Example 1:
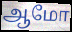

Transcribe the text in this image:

ஆமோ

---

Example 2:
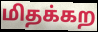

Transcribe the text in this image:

மிதக்கற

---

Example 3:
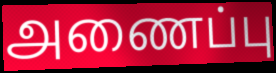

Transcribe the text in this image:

அணைப்பு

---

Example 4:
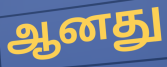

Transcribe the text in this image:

ஆனது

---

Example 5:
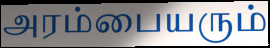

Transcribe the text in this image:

அரம்பையரும்